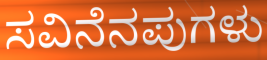
ಸವಿನೆನಪುಗಳು